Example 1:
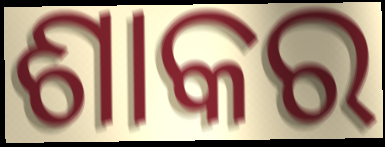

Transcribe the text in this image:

ଶାକର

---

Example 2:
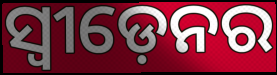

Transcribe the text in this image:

ସ୍ଵୀଡ଼େନର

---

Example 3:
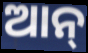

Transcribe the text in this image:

ଆନ୍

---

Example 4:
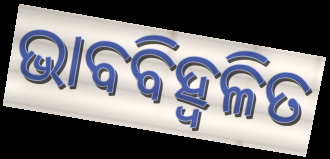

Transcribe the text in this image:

ଭାବବିହ୍ବଳିତ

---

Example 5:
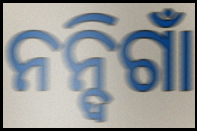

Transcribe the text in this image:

ନନ୍ଦିଗାଁ